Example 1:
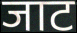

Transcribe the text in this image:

जाट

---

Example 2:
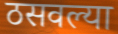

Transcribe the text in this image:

ठसवल्या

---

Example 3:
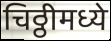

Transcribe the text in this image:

चिठ्ठीमध्ये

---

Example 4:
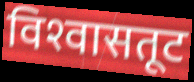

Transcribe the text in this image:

विश्वासतूट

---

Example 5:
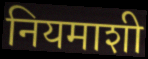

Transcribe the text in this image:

नियमाशी